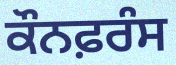
ਕੌਨਫ਼ਰੰਸ